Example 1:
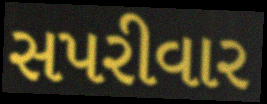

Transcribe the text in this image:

સપરીવાર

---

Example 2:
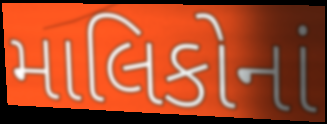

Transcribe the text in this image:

માલિકોનાં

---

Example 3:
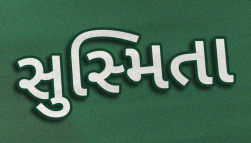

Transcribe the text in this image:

સુસ્મિતા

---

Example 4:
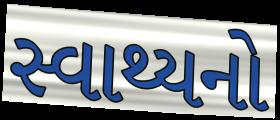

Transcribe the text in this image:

સ્વાથ્યનો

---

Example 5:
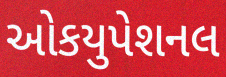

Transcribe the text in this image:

ઓકયુપેશનલ